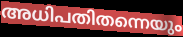
അധിപതിതന്നെയും